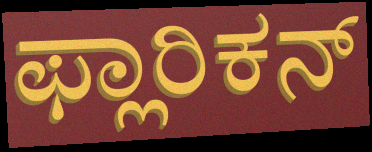
ಫ್ಲಾರಿಕನ್